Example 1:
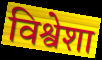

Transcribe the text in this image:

विश्वेशा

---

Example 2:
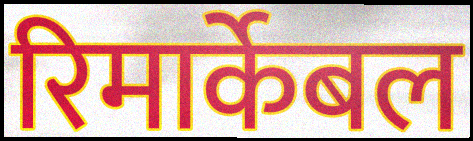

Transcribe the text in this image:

रिमार्केबल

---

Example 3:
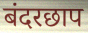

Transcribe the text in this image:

बंदरछाप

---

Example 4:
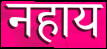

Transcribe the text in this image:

नहाय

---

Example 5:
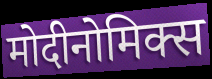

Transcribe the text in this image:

मोदीनोमिक्स